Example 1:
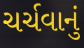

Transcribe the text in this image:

ચર્ચવાનું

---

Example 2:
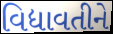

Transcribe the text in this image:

વિદ્યાવતીને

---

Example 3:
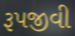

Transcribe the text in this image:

રૂપજીવી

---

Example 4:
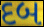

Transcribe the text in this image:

દબ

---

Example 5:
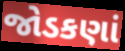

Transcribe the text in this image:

જોડકણાં